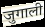
जुगाली